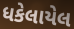
ધકેલાયેલ